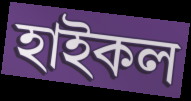
হাইকল